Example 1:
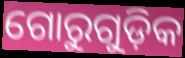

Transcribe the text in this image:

ଗୋରୁଗୁଡ଼ିକ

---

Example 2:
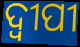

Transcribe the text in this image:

ଦ୍ୱୀପୀ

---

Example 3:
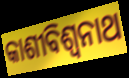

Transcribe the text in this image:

କାଶୀବିଶ୍ୱନାଥ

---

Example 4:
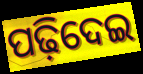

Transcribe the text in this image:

ପଢ଼ିଦେଇ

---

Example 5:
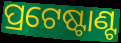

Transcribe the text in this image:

ପ୍ରଟେଷ୍ଟାଣ୍ଟ